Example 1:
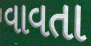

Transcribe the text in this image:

વાવતા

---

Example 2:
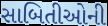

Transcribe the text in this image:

સાબિતીઓની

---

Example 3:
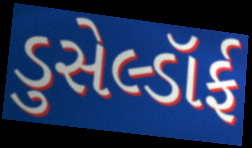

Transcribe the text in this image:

ડુસેલ્ડૉર્ફ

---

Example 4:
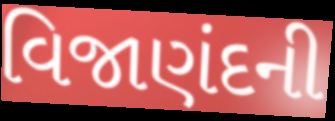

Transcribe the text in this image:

વિજાણંદની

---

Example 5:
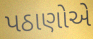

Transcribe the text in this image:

પઠાણોએ